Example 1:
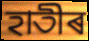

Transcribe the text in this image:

হাতীৰ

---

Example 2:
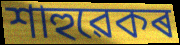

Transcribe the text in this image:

শাহুৱেকৰ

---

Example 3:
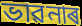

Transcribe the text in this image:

ভাৱনাৰ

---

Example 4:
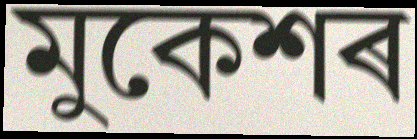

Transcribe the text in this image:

মুকেশৰ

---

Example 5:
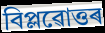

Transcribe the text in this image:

বিপ্লৱোত্তৰ